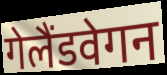
गेलैंडवेगन